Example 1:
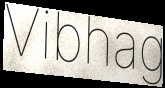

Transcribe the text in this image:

Vibhag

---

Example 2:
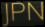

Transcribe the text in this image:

JPN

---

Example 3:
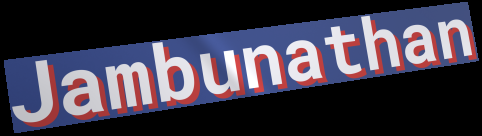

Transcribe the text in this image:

Jambunathan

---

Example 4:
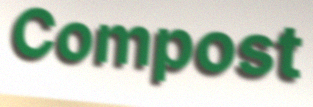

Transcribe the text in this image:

Compost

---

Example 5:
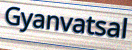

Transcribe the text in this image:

Gyanvatsal